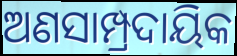
ଅଣସାମ୍ପ୍ରଦାୟିକ